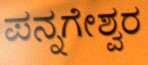
ಪನ್ನಗೇಶ್ವರ